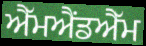
ਐੱਮਐਂਡਐੱਮ